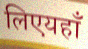
लिएयहाँ